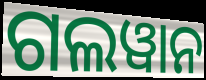
ଗଲୱାନ